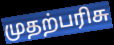
முதற்பரிசு